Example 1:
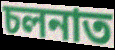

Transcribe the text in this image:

চলনাত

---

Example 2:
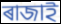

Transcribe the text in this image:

ৰাজাই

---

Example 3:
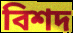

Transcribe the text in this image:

বিশদ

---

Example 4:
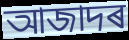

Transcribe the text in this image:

আজাদৰ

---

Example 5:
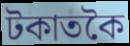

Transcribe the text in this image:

টকাতকৈ